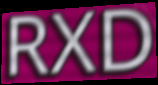
RXD